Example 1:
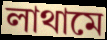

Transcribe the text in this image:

লাথামে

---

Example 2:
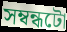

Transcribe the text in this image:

সম্বন্ধটো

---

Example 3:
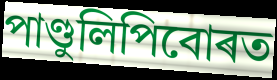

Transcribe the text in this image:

পাণ্ডুলিপিবোৰত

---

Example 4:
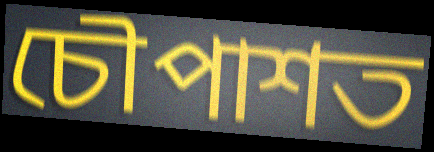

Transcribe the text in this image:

চৌপাশত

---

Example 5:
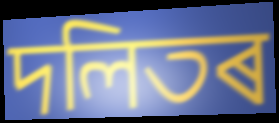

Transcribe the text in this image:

দলিতৰ